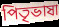
পিতৃভাষা